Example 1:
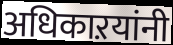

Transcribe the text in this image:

अधिकाऱयांनी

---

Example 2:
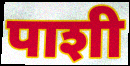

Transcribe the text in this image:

पाशी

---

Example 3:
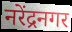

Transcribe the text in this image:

नरेंद्रनगर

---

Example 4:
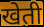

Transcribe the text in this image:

खेती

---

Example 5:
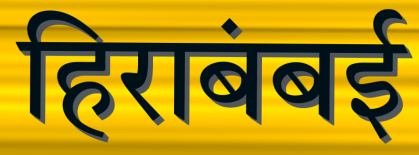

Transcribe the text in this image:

हिराबंबई